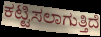
ಕಟ್ಟಿಸಲಾಗುತ್ತಿದೆ